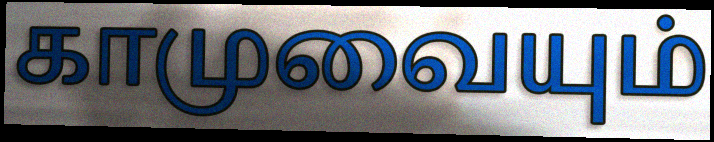
காமுவையும்